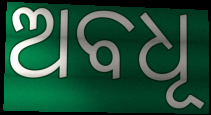
ଅବଧୂ